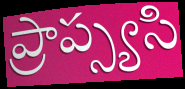
ప్రాప్స్యసి